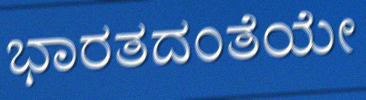
ಭಾರತದಂತೆಯೇ